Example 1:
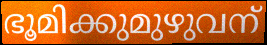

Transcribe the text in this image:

ഭൂമിക്കുമുഴുവന്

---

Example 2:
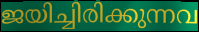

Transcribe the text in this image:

ജയിച്ചിരിക്കുന്നവ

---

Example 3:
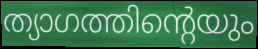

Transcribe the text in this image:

ത്യാഗത്തിന്റെയും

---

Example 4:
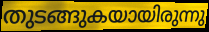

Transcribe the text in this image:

തുടങ്ങുകയായിരുന്നു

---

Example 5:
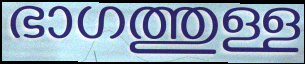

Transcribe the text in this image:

ഭാഗത്തുള്ള